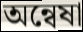
অন্বেষা